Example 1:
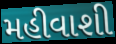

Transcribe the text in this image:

મહીવાશી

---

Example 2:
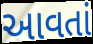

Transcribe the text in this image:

આવતાં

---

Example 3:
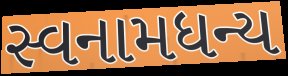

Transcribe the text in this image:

સ્વનામધન્ય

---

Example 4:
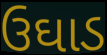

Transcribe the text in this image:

ઉઘાડ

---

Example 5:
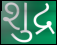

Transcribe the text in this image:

શુદ્ર